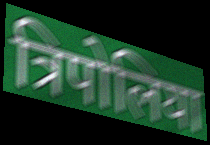
त्रिपोलिया